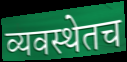
व्यवस्थेतच